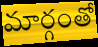
మార్గంతో